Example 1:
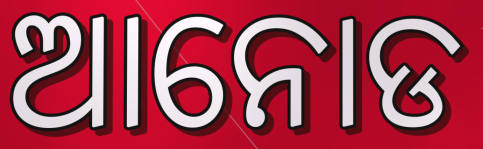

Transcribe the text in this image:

ଆନୋଡ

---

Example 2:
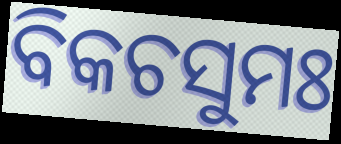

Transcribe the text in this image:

ବିକଚସୁମଃ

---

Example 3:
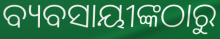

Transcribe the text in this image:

ବ୍ୟବସାୟୀଙ୍କଠାରୁ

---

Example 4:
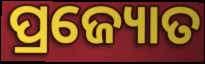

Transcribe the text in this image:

ପ୍ରଜ୍ୟୋତ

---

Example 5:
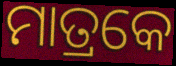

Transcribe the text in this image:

ମାତ୍ରକେ